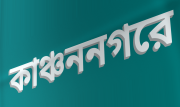
কাঞ্চননগরে